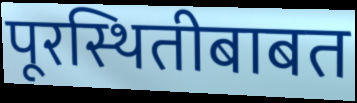
पूरस्थितीबाबत